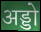
अड्डो